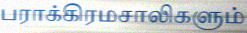
பராக்கிரமசாலிகளும்